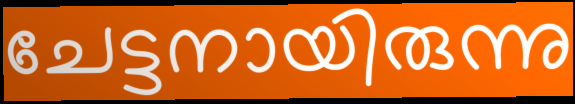
ചേട്ടനായിരുന്നു